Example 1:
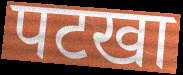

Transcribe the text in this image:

पटखा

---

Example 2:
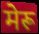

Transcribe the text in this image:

मेरू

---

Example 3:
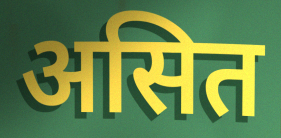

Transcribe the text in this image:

असित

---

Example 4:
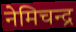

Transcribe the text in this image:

नेमिचन्द्र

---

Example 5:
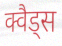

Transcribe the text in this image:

क्वैड्स